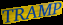
TRAMP